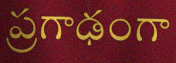
ప్రగాఢంగా